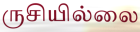
ருசியில்லை